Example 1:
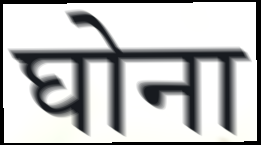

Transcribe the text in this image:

घोना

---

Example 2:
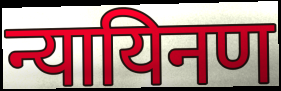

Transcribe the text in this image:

न्यायिनण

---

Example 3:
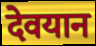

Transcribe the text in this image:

देवयान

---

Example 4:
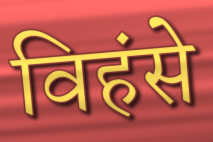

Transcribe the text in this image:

विहंसे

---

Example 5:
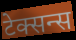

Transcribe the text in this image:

टेक्सन्स